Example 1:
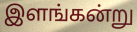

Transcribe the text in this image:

இளங்கன்று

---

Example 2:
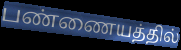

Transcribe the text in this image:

பண்ணையத்தில்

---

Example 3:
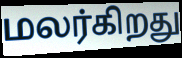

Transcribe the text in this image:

மலர்கிறது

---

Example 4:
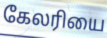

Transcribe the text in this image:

கேலரியை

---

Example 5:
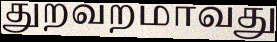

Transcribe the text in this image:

துறவறமாவது